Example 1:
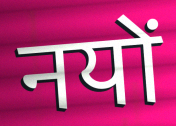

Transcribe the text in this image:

नयों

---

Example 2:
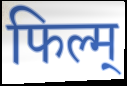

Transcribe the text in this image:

फिल्म्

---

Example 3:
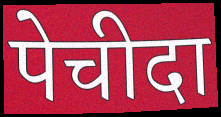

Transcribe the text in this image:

पेचीदा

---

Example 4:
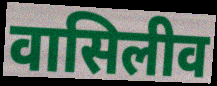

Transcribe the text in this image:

वासिलीव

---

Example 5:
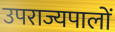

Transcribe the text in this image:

उपराज्यपालों